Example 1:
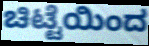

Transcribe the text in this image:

ಚಿಟ್ಟೆಯಿಂದ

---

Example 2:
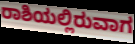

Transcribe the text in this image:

ರಾಶಿಯಲ್ಲಿರುವಾಗ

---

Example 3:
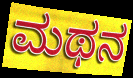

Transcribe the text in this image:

ಮಥನ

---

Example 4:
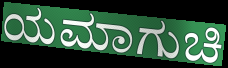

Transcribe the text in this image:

ಯಮಾಗುಚಿ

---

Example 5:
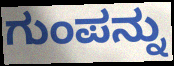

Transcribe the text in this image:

ಗುಂಪನ್ನು